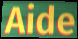
Aide